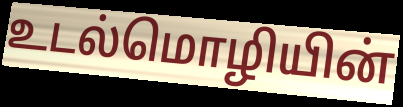
உடல்மொழியின்